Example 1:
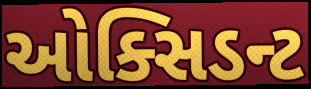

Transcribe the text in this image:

ઓક્સિડન્ટ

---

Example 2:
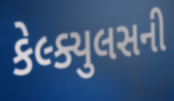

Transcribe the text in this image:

કેલ્ક્યુલસની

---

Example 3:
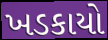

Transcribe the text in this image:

ખડકાયો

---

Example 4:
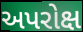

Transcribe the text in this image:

અપરોક્ષ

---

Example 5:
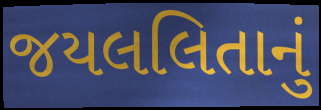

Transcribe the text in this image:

જયલલિતાનું